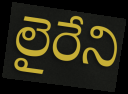
లైరేని